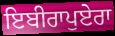
ਇਬੀਰਾਪੁਏਰਾ